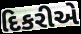
દિકરીએ